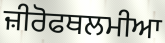
ਜ਼ੀਰੋਫਥਲਮੀਆ